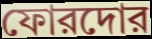
ফোরদোর